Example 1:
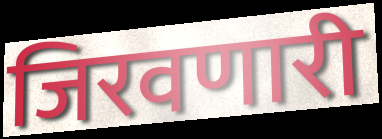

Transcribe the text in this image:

जिरवणारी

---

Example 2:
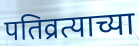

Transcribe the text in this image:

पतिव्रत्याच्या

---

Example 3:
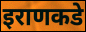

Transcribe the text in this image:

इराणकडे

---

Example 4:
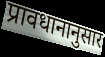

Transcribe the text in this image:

प्रावधानानुसार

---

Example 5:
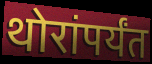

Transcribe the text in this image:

थोरांपर्यंत